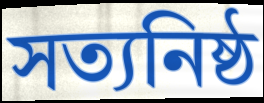
সত্যনিষ্ঠ